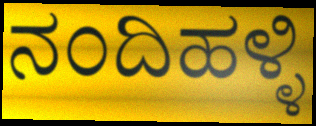
ನಂದಿಹಳ್ಳಿ